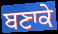
ਬਣਾਕੇ